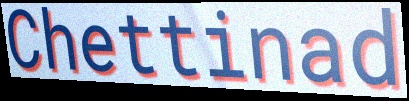
Chettinad